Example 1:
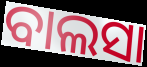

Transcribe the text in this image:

ବାଲସା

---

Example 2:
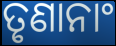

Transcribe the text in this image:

ତୃଣାନାଂ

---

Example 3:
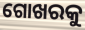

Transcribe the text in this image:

ଗୋଖରକୁ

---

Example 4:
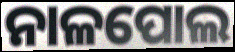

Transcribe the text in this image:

ନାଳପୋଲ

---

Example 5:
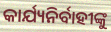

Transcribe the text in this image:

କାର୍ଯ୍ୟନିର୍ବାହୀଙ୍କୁ